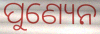
ପୁଣ୍ୟେନ